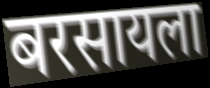
बरसायला